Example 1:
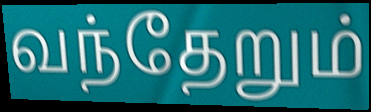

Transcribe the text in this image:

வந்தேறும்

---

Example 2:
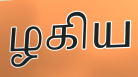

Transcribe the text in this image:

ழகிய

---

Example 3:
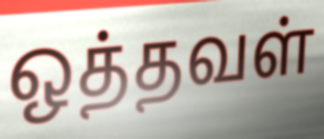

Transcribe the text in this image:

ஒத்தவள்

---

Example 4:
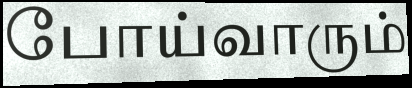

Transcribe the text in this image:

போய்வாரும்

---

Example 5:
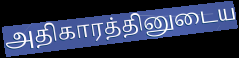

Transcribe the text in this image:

அதிகாரத்தினுடைய